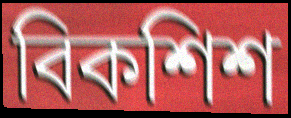
বিকশিশ